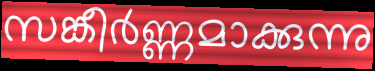
സങ്കീർണ്ണമാക്കുന്നു